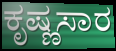
ಕೃಷ್ಣಸಾರ